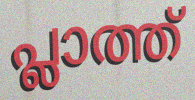
പ്ലാത്ത്